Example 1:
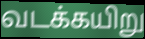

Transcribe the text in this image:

வடக்கயிறு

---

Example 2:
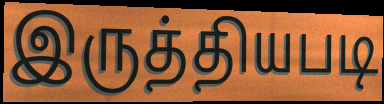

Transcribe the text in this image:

இருத்தியபடி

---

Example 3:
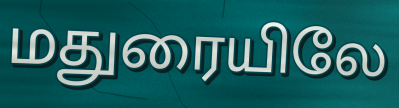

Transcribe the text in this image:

மதுரையிலே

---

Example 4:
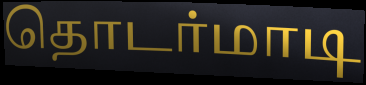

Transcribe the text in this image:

தொடர்மாடி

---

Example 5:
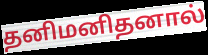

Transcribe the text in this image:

தனிமனிதனால்